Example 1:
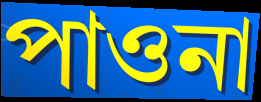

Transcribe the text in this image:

পাওনা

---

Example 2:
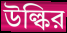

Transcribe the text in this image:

উল্কির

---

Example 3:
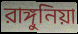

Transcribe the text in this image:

রাঙ্গুনিয়া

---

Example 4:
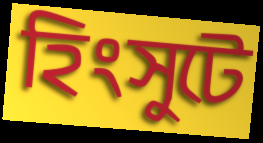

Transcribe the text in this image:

হিংসুটে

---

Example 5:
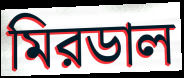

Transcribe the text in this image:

মিরডাল